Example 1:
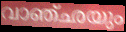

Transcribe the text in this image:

വാഞ്ഛയും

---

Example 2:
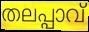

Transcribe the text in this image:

തലപ്പാവ്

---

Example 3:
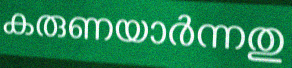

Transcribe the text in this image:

കരുണയാർന്നതു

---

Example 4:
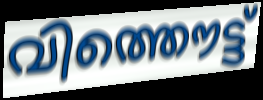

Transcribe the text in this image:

വിത്തൌട്ട്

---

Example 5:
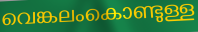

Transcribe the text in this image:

വെങ്കലംകൊണ്ടുള്ള